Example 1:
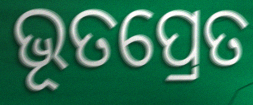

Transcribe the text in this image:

ଭୂତପ୍ରେତ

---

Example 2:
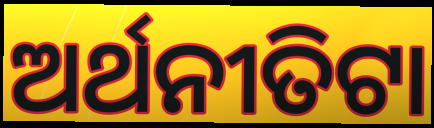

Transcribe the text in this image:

ଅର୍ଥନୀତିଟା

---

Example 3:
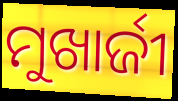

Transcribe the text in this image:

ମୁଖାର୍ଜୀ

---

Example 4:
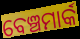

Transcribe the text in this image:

ବେଞ୍ଚମାର୍କ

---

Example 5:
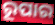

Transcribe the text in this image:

ରୂପାର